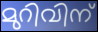
മുറിവിന്